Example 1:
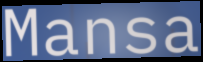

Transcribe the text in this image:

Mansa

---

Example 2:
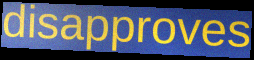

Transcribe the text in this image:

disapproves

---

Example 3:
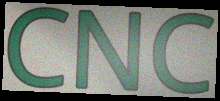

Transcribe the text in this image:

CNC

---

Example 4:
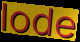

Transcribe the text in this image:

lode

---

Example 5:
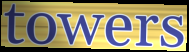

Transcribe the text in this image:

towers